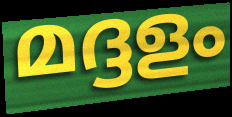
മദ്ദളം